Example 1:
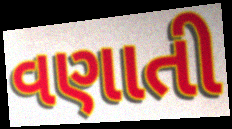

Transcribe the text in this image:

વણાતી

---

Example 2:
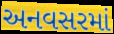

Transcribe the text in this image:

અનવસરમાં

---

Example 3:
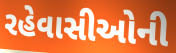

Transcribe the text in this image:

રહેવાસીઓની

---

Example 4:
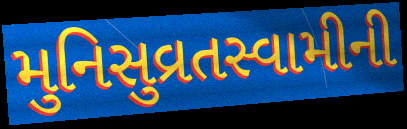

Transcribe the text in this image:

મુનિસુવ્રતસ્વામીની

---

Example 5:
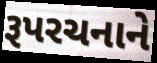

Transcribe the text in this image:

રૂપરચનાને